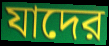
যাদের